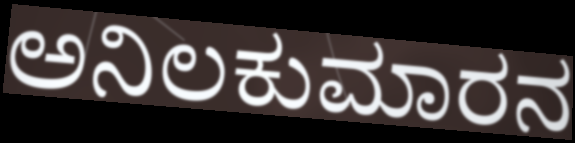
ಅನಿಲಕುಮಾರನ